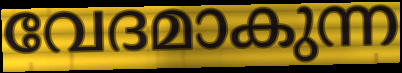
വേദമാകുന്ന